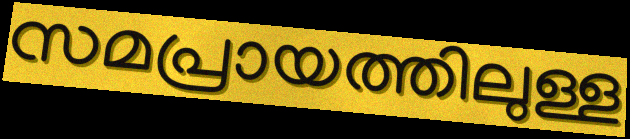
സമപ്രായത്തിലുള്ള